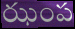
ఝంప